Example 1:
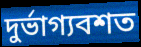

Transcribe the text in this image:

দুর্ভাগ্যবশত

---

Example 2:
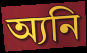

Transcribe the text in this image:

অ্যনি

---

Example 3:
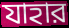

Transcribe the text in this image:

যাহার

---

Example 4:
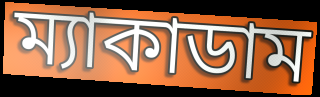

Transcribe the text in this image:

ম্যাকাডাম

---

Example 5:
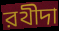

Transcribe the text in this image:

রথীদা